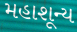
મહાશૂન્ય